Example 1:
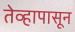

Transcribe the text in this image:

तेव्हापासून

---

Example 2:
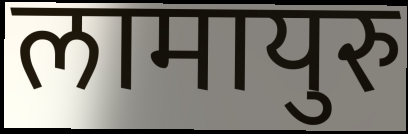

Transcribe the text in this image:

लामायुरु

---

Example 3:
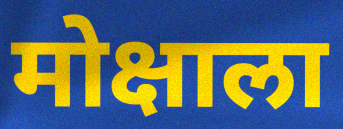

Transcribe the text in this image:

मोक्षाला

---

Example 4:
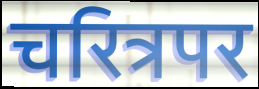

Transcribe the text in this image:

चरित्रपर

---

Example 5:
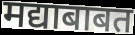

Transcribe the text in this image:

मद्याबाबत